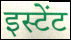
इस्टेंट